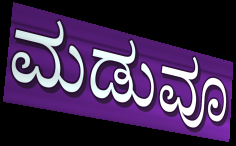
ಮಡುವೂ